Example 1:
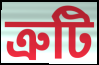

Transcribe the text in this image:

ত্ৰুটি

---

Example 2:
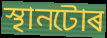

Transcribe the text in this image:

স্থানটোৰ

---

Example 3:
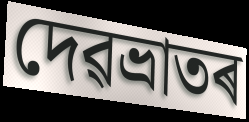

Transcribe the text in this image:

দেৱভ্ৰাতৰ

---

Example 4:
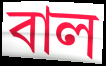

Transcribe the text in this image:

বাল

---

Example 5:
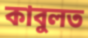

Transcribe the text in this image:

কাবুলত